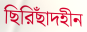
ছিরিছাঁদহীন